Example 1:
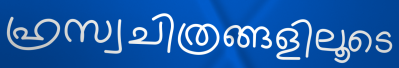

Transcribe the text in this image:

ഹ്രസ്വചിത്രങ്ങളിലൂടെ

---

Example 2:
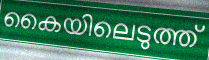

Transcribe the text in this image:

കൈയിലെടുത്ത്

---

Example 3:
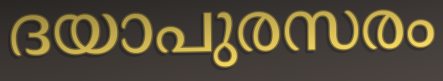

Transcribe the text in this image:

ദയാപുരസരം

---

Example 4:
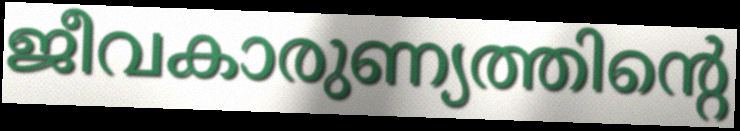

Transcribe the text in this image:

ജീവകാരുണ്യത്തിന്റെ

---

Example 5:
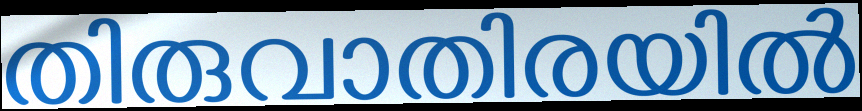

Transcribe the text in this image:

തിരുവാതിരയിൽ